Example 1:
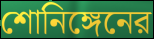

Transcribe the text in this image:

শোনিঙ্গেনের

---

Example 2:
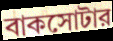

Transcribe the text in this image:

বাকসোটার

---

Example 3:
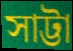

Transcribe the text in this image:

সাট্টা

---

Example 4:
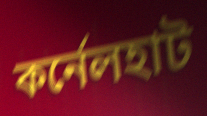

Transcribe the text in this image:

কর্নেলহাট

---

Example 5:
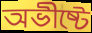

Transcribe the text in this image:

অভীষ্টে